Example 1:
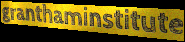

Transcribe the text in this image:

granthaminstitute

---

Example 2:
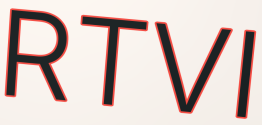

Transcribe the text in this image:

RTVI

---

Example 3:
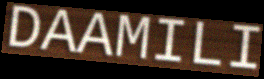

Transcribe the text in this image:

DAAMILI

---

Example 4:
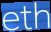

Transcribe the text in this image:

eth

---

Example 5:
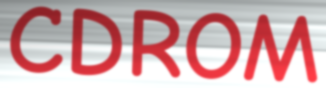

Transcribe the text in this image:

CDROM